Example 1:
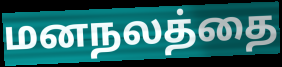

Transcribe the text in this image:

மனநலத்தை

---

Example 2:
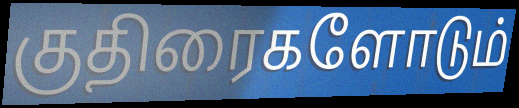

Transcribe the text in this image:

குதிரைகளோடும்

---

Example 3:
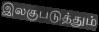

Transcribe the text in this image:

இலகுபடுத்தும்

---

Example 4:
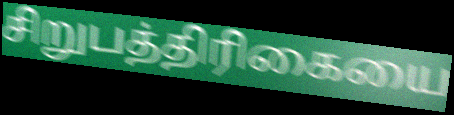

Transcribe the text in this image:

சிறுபத்திரிகையை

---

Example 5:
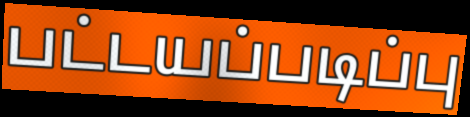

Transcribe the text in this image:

பட்டயப்படிப்பு